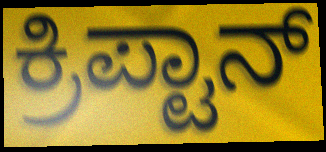
ಕ್ರಿಪ್ಟಾನ್